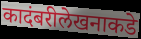
कादंबरीलेखनाकडे